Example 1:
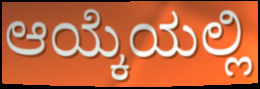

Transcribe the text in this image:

ಆಯ್ಕೆಯಲ್ಲಿ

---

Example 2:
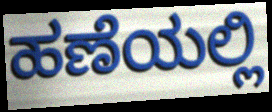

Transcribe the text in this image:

ಹಣೆಯಲ್ಲಿ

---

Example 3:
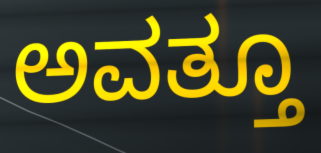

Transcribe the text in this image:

ಅವತ್ತೂ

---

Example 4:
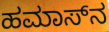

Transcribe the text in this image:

ಹಮಾಸ್‌ನ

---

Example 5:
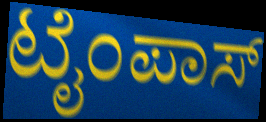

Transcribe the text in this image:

ಟೈಂಪಾಸ್